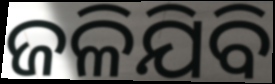
ଜଳିଯିବି